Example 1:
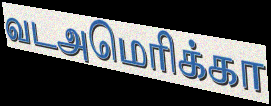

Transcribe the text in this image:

வடஅமெரிக்கா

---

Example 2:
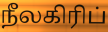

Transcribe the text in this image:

நீலகிரிப்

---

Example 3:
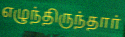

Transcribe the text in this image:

எழுந்திருந்தார்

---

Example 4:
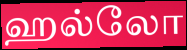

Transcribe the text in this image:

ஹல்லோ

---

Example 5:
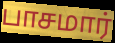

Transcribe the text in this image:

பாசமார்